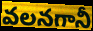
వలనగానీ